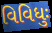
વિવિધુઃ